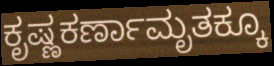
ಕೃಷ್ಣಕರ್ಣಾಮೃತಕ್ಕೂ